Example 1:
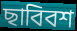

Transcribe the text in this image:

ছাবিবশ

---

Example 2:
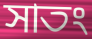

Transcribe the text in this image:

সাতং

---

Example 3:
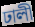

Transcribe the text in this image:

ঢালী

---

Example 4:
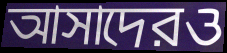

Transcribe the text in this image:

আসাদেরও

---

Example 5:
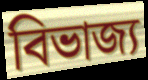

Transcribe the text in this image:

বিভাজ্য